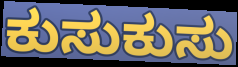
ಕುಸುಕುಸು